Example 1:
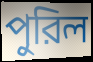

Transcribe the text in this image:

পুরিল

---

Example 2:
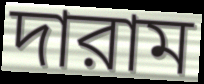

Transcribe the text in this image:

দারাম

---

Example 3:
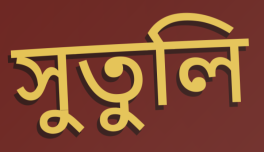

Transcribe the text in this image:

সুতুলি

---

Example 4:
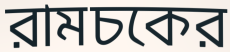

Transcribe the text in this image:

রামচকের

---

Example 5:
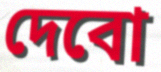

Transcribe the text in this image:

দেবো